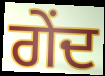
ਗੇਂਦ